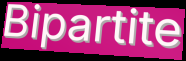
Bipartite